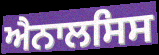
ਐਨਾਲਸਿਸ